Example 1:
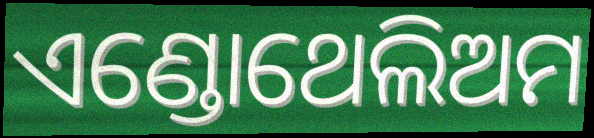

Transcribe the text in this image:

ଏଣ୍ଡୋଥେଲିଅମ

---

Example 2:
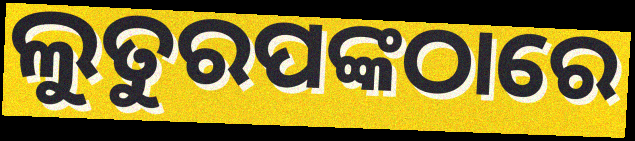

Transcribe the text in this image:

ଲୁତୁରପଙ୍କଠାରେ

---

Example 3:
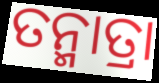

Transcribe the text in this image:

ତନ୍ମାତ୍ରା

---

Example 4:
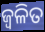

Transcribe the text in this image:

ଜ୍ୱଳିତ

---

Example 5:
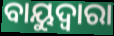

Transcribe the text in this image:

ବାୟୁଦ୍ୱାରା